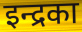
इन्द्रका